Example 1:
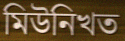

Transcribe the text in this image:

মিউনিখত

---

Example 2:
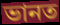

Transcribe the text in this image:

ভানত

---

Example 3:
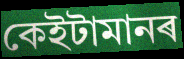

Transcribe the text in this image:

কেইটামানৰ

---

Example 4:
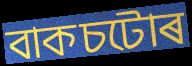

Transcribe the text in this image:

বাকচটোৰ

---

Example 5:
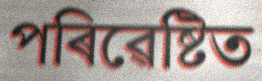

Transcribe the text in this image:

পৰিৱেষ্টিত